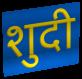
शुदी